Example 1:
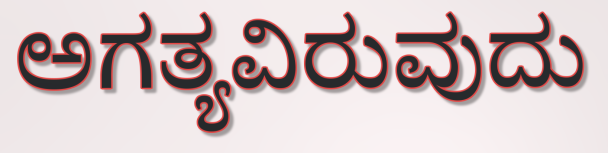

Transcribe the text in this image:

ಅಗತ್ಯವಿರುವುದು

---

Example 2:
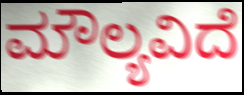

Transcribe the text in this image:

ಮೌಲ್ಯವಿದೆ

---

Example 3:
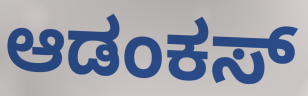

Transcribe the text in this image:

ಆಡಂಕಸ್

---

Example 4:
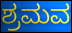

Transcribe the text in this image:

ಶ್ರಮವ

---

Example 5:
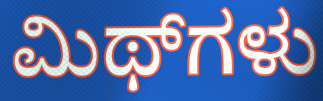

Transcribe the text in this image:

ಮಿಥ್‌ಗಳು